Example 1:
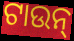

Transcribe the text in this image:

ଟାଉନ୍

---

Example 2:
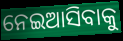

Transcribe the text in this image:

ନେଇଆସିବାକୁ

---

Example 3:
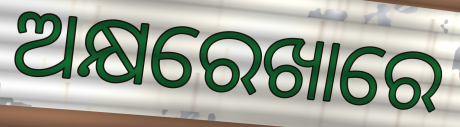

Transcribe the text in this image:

ଅକ୍ଷରେଖାରେ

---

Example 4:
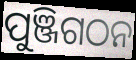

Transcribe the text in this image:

ପୁଞ୍ଜିଗଠନ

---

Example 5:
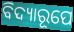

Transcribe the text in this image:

ବିଦ୍ୟାରୂପେ